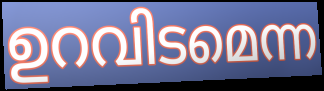
ഉറവിടമെന്ന